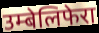
उम्बेलिफेरा